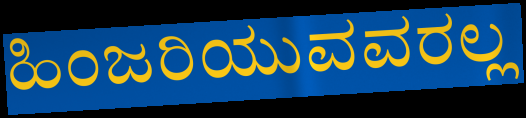
ಹಿಂಜರಿಯುವವರಲ್ಲ